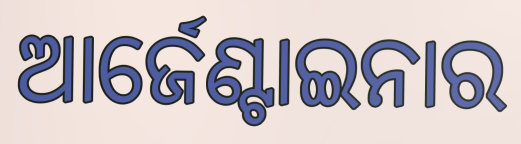
ଆର୍ଜେଣ୍ଟାଇନାର